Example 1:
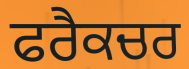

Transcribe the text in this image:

ਫਰੈਕਚਰ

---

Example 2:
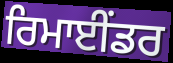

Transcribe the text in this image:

ਰਿਮਾਈਂਡਰ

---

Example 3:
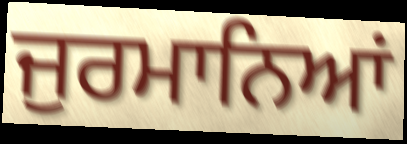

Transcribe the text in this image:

ਜੁਰਮਾਨਿਆਂ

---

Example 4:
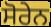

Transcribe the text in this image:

ਸੋਰੇਨ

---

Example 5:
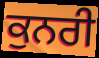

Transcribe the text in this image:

ਕੁਨਰੀ